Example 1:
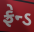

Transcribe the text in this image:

ફ્રેન્ડ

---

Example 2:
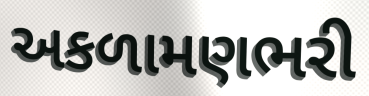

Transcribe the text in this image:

અકળામણભરી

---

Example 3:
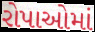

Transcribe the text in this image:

રોપાઓમાં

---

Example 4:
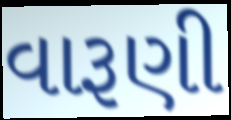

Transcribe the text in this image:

વારૂણી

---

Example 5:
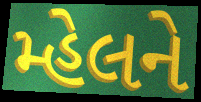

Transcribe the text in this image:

મ્હેલને